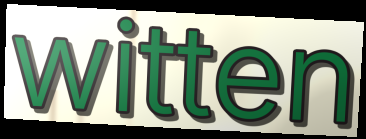
witten